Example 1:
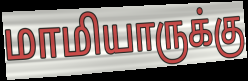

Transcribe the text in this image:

மாமியாருக்கு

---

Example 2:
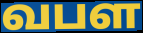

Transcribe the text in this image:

வபள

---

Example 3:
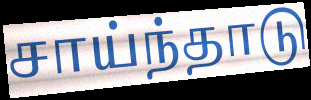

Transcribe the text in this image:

சாய்ந்தாடு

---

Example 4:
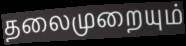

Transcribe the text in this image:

தலைமுறையும்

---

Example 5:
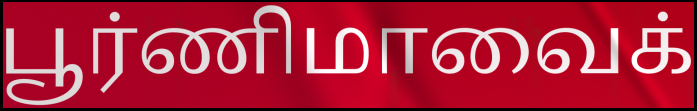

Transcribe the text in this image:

பூர்ணிமாவைக்